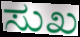
ಸುಖ